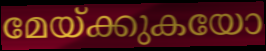
മേയ്ക്കുകയോ